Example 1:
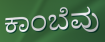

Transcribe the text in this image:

ಕಾಂಬೆವು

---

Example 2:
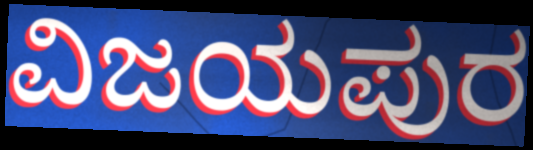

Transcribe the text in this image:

ವಿಜಯಪುರ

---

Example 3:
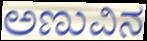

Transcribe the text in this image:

ಅಣುವಿನ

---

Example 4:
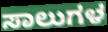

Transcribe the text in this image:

ಸಾಲುಗಳ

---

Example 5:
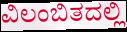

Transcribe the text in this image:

ವಿಲಂಬಿತದಲ್ಲಿ